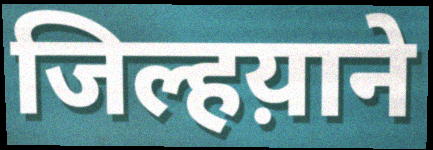
जिल्हय़ाने